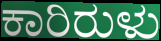
ಕಾರಿರುಳು